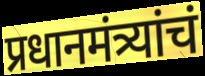
प्रधानमंत्र्यांचं